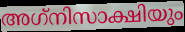
അഗ്‌നിസാക്ഷിയും